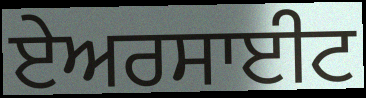
ਏਅਰਸਾਈਟ